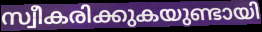
സ്വീകരിക്കുകയുണ്ടായി